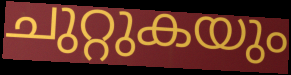
ചുറ്റുകയും